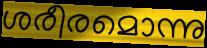
ശരീരമൊന്നു